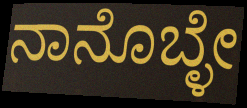
ನಾನೊಬ್ಳೇ